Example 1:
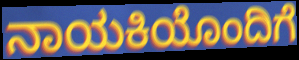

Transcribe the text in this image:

ನಾಯಕಿಯೊಂದಿಗೆ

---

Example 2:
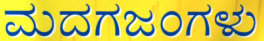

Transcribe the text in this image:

ಮದಗಜಂಗಳು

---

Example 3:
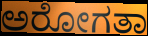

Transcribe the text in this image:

ಅರೋಗತಾ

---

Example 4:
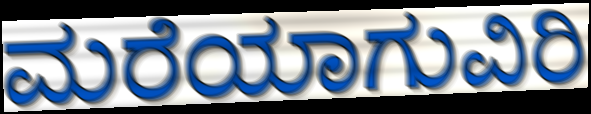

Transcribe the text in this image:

ಮರೆಯಾಗುವಿರಿ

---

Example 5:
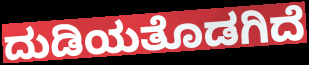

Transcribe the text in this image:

ದುಡಿಯತೊಡಗಿದೆ